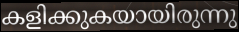
കളിക്കുകയായിരുന്നു